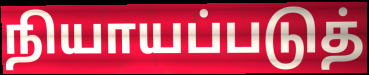
நியாயப்படுத்